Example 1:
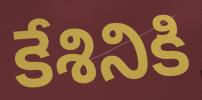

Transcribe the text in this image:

కేశినికి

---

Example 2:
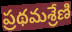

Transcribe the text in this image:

ప్రథమశ్రేణి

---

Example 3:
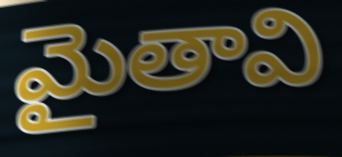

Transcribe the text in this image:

మైతావి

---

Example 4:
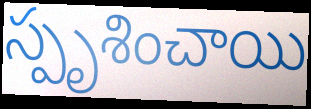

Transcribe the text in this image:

స్పృశించాయి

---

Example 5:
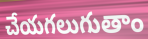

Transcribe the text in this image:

చేయగలుగుతాం